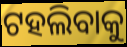
ଟହଲିବାକୁ